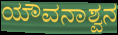
ಯೌವನಾಶ್ವನ